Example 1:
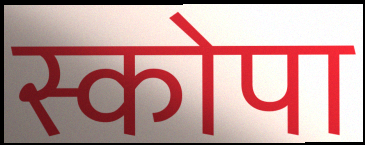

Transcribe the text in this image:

स्कोपा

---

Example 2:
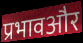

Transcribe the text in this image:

प्रभावऔर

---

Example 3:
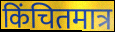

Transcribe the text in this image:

किंचितमात्र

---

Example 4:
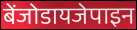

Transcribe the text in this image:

बेंजोडायजेपाइन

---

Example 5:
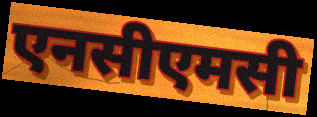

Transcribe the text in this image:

एनसीएमसी